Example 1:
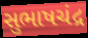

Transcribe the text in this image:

સુભાષચંદ્ર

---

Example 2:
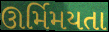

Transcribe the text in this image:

ઊર્મિમયતા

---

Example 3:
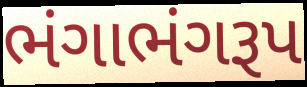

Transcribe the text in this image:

ભંગાભંગરૂપ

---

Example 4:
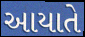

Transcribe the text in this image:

આયાતે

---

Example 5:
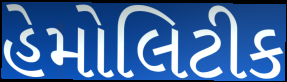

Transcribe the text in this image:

હેમોલિટીક